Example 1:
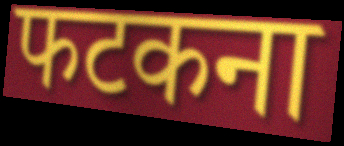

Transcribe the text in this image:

फटकना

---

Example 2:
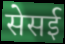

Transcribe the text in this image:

सेसई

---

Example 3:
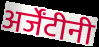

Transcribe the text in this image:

अर्जेंटीनी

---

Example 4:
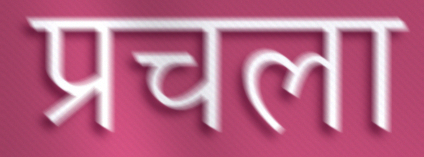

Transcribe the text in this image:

प्रचला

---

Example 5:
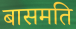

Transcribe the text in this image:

बासमति